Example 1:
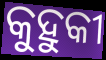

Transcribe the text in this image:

କୁହୁକୀ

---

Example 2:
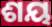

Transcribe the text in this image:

ଶୟ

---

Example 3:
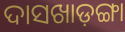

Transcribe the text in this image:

ଦାସଖାଡ଼ଙ୍ଗା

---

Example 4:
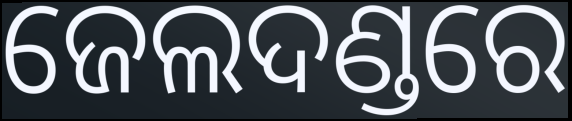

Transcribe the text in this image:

ଜେଲଦଣ୍ଡରେ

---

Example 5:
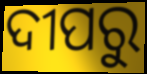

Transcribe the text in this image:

ଦୀପରୁ